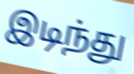
இடிந்து